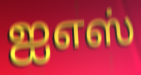
ஐஎஸ்